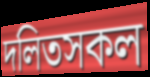
দলিতসকল